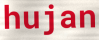
hujan